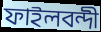
ফাইলবন্দী